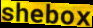
shebox